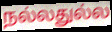
நல்லதுல்ல